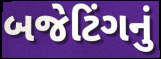
બજેટિંગનું